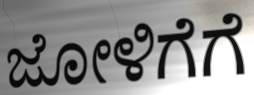
ಜೋಳಿಗೆಗೆ